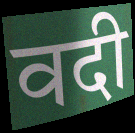
वदी